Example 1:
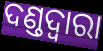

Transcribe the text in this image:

ଦଣ୍ଡଦ୍ବାରା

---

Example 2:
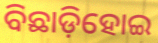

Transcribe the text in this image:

ବିଛାଡ଼ିହୋଇ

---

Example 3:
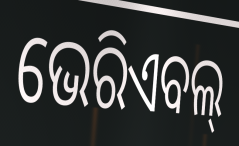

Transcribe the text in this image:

ଭେରିଏବଲ୍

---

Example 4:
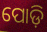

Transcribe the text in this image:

ପୋଡ଼ି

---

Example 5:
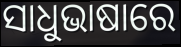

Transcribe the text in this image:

ସାଧୁଭାଷାରେ